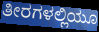
ತೀರಗಳಲ್ಲಿಯೂ